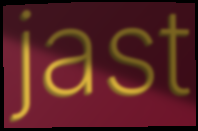
jast